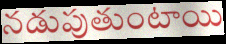
నడుపుతుంటాయి